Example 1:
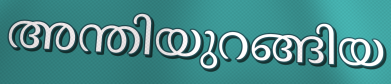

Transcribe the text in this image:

അന്തിയുറങ്ങിയ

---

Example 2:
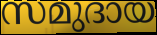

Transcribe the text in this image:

സമുദായ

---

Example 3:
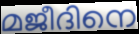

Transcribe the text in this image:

മജീദിനെ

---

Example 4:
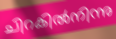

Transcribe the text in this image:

ചിറകിൽനിന്നു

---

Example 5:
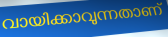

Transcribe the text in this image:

വായിക്കാവുന്നതാണ്